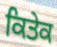
ਕਿਤੇਕ